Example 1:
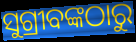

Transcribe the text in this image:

ସୁଗ୍ରୀବଙ୍କଠାରୁ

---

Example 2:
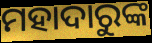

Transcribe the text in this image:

ମହାଦାରୁଙ୍କ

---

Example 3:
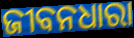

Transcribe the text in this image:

ଜୀବନଧାରା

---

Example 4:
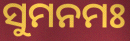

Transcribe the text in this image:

ସୁମନମଃ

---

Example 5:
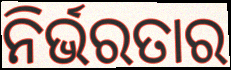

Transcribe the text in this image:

ନିର୍ଭରତାର